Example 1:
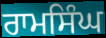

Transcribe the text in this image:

ਰਾਮਸਿੰਘ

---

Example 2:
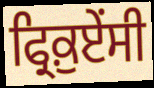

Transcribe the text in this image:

ਫ੍ਰਿਕ਼ੁਏਂਸੀ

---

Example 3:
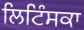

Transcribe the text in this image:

ਲਿਟਿੰਸਕਾ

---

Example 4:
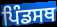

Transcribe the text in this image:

ਪਿੰਡਸਥ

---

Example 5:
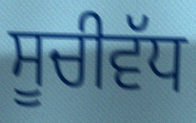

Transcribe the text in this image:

ਸੂਚੀਵੱਧ